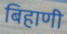
बिहाणी